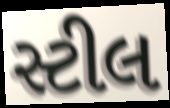
સ્ટીલ